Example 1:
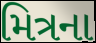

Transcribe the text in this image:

મિત્રના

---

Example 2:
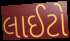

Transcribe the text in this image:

લાઈટો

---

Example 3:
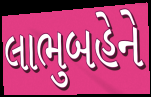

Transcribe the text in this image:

લાભુબહેને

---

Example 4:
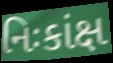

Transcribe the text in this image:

નિઃકાંક્ષ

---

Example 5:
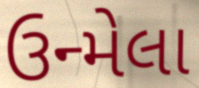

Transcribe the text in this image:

ઉન્મેલા